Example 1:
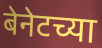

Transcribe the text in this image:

बेनेटच्या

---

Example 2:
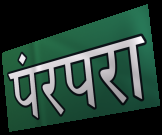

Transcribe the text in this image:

पंरपरा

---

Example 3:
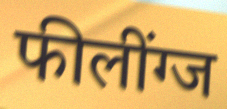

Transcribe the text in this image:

फीलींग्ज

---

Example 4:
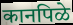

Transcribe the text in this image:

कानपिळे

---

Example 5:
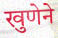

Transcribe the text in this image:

खुणेने